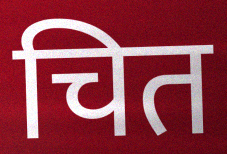
चित